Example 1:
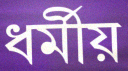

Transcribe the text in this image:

ধৰ্মীয়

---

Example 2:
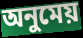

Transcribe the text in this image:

অনুমেয়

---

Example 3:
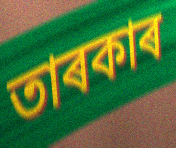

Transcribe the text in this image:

তাৰকাৰ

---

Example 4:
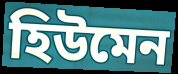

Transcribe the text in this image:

হিউমেন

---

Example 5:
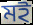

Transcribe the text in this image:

মই